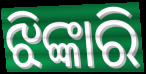
ଝିଙ୍କାରି